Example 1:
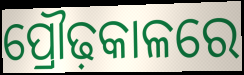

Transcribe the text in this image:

ପ୍ରୌଢ଼କାଳରେ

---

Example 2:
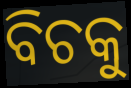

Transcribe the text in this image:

ବିଚକୁ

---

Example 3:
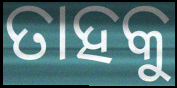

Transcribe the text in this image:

ତାହକୁ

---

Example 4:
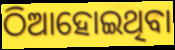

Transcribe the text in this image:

ଠିଆହୋଇଥିବା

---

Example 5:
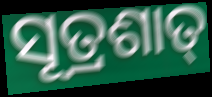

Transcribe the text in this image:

ସୂତ୍ରଶାତ୍